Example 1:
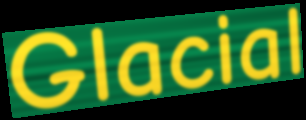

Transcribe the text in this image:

Glacial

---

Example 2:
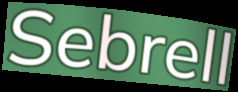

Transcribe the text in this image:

Sebrell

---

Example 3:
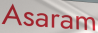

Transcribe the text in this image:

Asaram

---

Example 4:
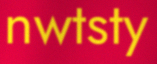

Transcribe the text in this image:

nwtsty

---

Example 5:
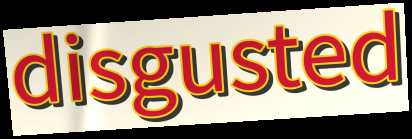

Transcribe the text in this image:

disgusted